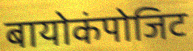
बायोकंपोजिट